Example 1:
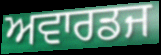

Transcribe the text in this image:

ਅਵਾਰਡਜ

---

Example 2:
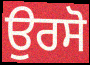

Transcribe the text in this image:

ਉਰਸੋ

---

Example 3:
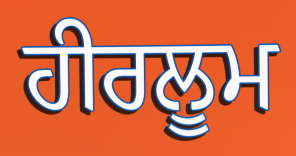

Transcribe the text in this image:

ਹੀਰਲੂਮ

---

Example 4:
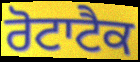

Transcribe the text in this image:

ਰੋਟਾਟੈਕ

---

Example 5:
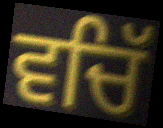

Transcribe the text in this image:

ਵਚਿੱ